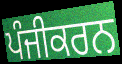
ਪੰਜੀਕਰਨ